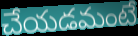
చేయడమంటే